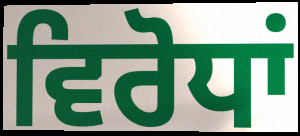
ਵਿਰੋਧਾਂ